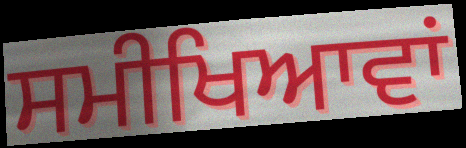
ਸਮੀਖਿਆਵਾਂ